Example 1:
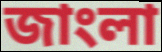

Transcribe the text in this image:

জাংলা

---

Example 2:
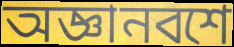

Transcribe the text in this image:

অজ্ঞানবশে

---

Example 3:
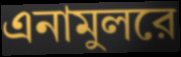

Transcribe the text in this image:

এনামুলরে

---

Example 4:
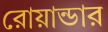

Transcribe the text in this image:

রোয়ান্ডার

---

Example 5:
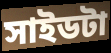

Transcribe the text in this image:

সাইডটা